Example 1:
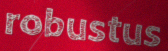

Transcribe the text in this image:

robustus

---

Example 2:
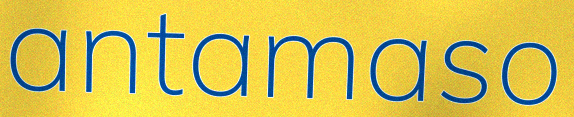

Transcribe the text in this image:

antamaso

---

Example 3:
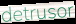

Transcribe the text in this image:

detrusor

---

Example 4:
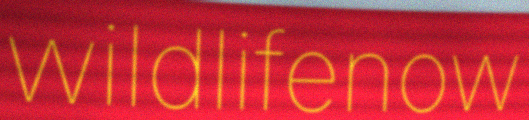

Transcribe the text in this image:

wildlifenow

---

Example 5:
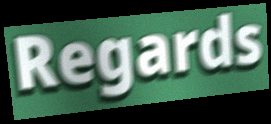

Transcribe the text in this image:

Regards